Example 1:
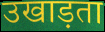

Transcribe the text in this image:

उखाड़ता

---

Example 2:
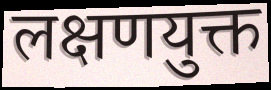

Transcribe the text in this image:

लक्षणयुक्त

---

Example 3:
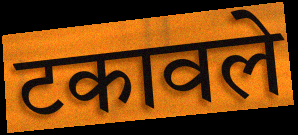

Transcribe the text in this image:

टकावले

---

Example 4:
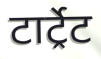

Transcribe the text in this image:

टार्ट्रेट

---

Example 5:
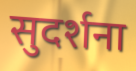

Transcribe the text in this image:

सुदर्शना